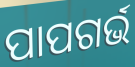
ପାପଗର୍ଭ